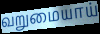
வறுமையாய்